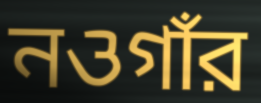
নওগাঁর